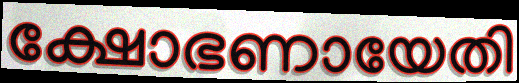
ക്ഷോഭണായേതി